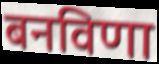
बनविणा